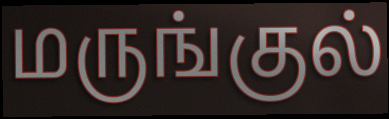
மருங்குல்